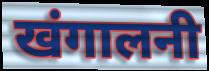
खंगालनी